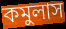
কমুলাস